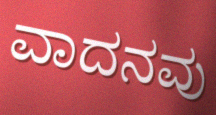
ವಾದನವು